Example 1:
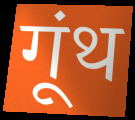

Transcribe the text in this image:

गूंथ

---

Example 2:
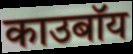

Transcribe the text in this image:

काउबॉय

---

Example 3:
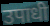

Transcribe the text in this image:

उपाधी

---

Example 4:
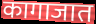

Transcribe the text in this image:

कागाजात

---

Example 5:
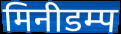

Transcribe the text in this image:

मिनीडम्प